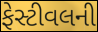
ફેસ્ટીવલની